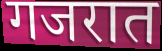
गजरात